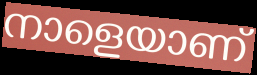
നാളെയാണ്